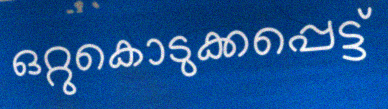
ഒറ്റുകൊടുക്കപ്പെട്ട്